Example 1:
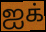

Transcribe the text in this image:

ஐக்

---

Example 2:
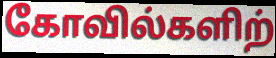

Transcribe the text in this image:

கோவில்களிற்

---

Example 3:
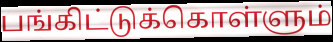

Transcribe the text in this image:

பங்கிட்டுக்கொள்ளும்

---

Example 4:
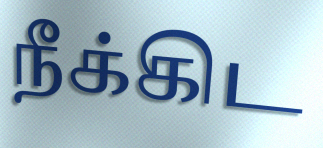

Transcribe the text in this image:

நீக்கிட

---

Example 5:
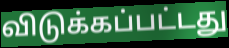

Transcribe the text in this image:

விடுக்கப்பட்டது